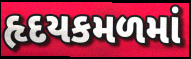
હૃદયકમળમાં